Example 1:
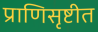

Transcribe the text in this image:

प्राणिसृष्टीत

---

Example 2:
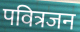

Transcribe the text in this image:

पवित्रजन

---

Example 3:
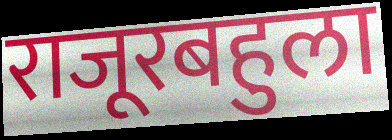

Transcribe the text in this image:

राजूरबहुला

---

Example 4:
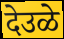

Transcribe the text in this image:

देउळे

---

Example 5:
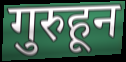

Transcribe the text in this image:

गुरुहून